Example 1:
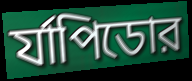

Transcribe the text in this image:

র্যাপিডোর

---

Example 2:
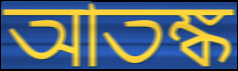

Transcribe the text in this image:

আতঙ্ক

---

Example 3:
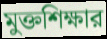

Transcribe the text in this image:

মুক্তশিক্ষার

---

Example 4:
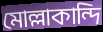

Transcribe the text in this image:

মোল্লাকান্দি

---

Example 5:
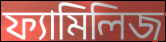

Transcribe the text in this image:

ফ্যামিলিজ